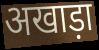
अखाड़ा